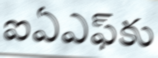
ఐఏఎఫ్‌కు